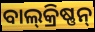
ବାଲ୍‍କ୍ରିଷ୍ଣନ୍